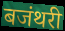
बजंथरी